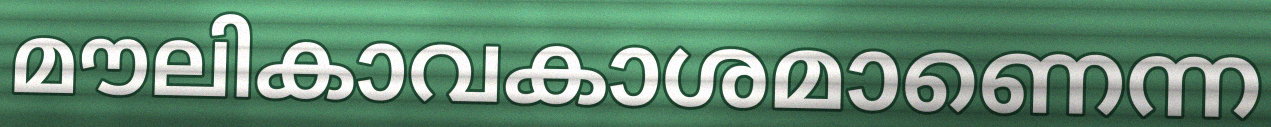
മൗലികാവകാശമാണെന്ന